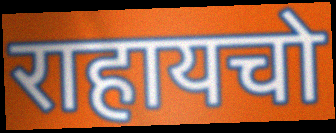
राहायचो